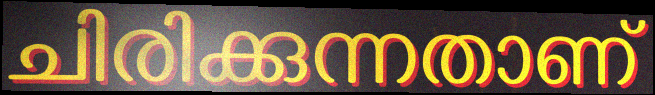
ചിരിക്കുന്നതാണ്